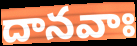
దానవాః